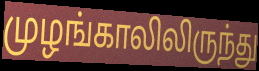
முழங்காலிலிருந்து